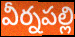
వీర్నపల్లి